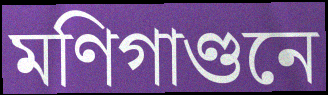
মণিগাণ্ডনে